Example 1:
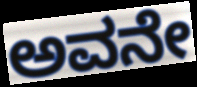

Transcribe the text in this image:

ಅವನೇ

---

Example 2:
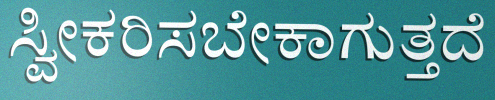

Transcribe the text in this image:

ಸ್ವೀಕರಿಸಬೇಕಾಗುತ್ತದೆ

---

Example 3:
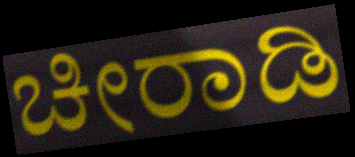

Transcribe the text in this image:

ಚೀರಾಡಿ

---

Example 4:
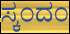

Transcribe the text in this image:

ಸ್ಕಂದಂ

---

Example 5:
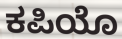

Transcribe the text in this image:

ಕಪಿಯೊ